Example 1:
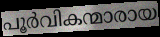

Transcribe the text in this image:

പൂർവികന്മാരായ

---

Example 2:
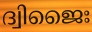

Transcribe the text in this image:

ദ്വിജൈഃ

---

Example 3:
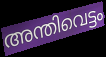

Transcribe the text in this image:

അന്തിവെട്ടം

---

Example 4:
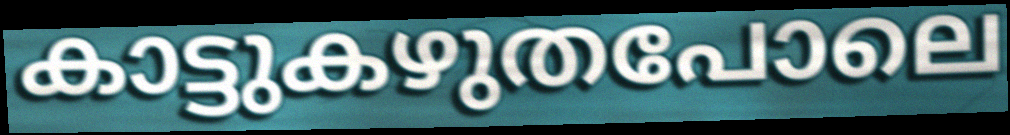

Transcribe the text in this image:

കാട്ടുകഴുതപോലെ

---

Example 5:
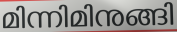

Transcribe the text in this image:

മിന്നിമിനുങ്ങി